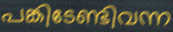
പങ്കിടേണ്ടിവന്ന